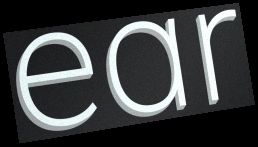
ear